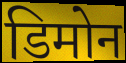
डिमोन